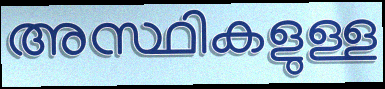
അസ്ഥികളുള്ള